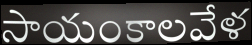
సాయంకాలవేళ